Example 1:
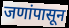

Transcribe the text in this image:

जणांपासून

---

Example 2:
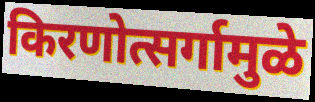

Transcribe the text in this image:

किरणोत्सर्गामुळे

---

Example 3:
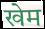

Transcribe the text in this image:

खेम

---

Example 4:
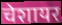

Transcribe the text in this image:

चेशायर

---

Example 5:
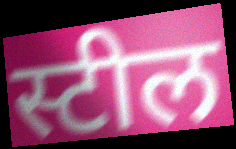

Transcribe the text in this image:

स्टील